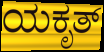
ಯಕೃತ್